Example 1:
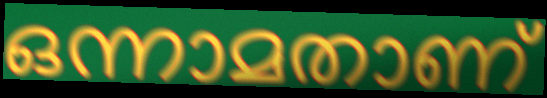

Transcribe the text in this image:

ഒന്നാമതാണ്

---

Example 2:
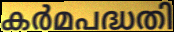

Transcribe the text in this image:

കർമപദ്ധതി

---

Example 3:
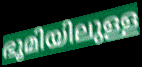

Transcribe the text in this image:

ഭൂമിയിലുള്ള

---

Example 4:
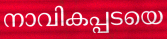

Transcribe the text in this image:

നാവികപ്പടയെ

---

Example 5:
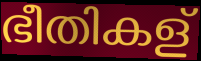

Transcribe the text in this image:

ഭീതികള്